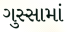
ગુસ્સામાં